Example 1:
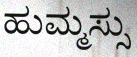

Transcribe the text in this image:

ಹುಮ್ಮಸ್ಸು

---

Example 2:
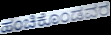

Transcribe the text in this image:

ಹಂಚಿಕೊಂಡವರ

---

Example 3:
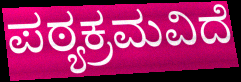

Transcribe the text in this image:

ಪಠ್ಯಕ್ರಮವಿದೆ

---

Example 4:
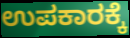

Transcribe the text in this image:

ಉಪಕಾರಕ್ಕೆ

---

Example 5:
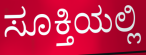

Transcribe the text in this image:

ಸೂಕ್ತಿಯಲ್ಲಿ